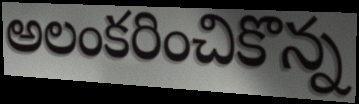
అలంకరించికొన్న